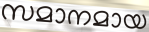
സമാനമായ